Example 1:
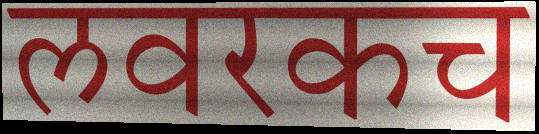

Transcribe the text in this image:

लवरकच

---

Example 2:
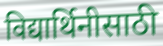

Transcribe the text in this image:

विद्यार्थिनीसाठी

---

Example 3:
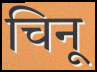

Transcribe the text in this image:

चिनू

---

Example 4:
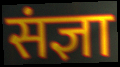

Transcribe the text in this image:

संज्ञा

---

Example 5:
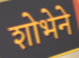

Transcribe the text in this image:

शोभेने